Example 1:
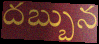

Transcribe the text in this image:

దబ్బున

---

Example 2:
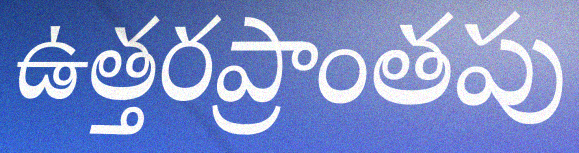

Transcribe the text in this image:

ఉత్తరప్రాంతపు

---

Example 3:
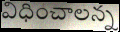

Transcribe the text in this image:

విధించాలన్న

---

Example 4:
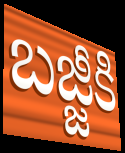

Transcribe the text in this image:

బజ్జీకి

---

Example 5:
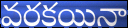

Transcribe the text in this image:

వరకయినా